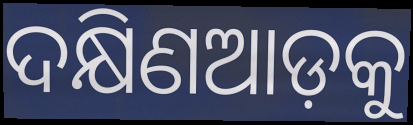
ଦକ୍ଷିଣଆଡ଼କୁ